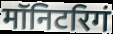
मॉनिटरिगं